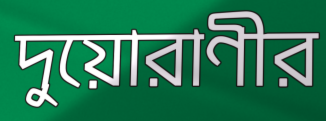
দুয়োরাণীর